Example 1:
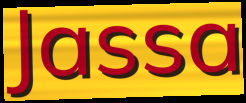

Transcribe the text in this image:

Jassa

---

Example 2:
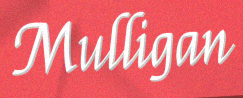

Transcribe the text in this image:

Mulligan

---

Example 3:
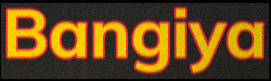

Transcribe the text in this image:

Bangiya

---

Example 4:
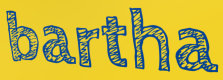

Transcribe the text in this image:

bartha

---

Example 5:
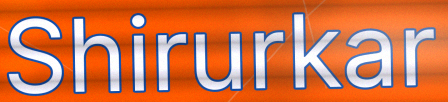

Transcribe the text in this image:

Shirurkar